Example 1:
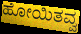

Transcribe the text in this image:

ಹೋಯಿತವ್ವ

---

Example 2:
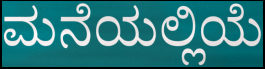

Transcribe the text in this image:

ಮನೆಯಲ್ಲಿಯೆ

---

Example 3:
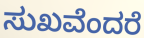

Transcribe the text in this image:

ಸುಖವೆಂದರೆ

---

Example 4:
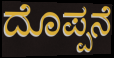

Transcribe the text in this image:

ದೊಪ್ಪನೆ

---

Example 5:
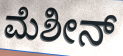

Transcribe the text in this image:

ಮೆಶೀನ್